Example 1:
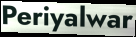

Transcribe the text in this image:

Periyalwar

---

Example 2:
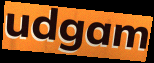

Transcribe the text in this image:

udgam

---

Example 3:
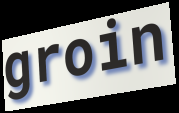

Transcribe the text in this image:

groin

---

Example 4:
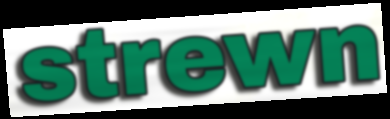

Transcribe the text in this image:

strewn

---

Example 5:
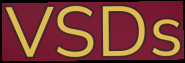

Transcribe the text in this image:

VSDs